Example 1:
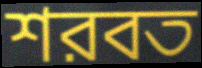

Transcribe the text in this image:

শরবত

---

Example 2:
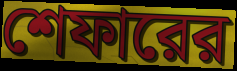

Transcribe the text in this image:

শেফারের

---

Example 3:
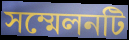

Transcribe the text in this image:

সম্মেলনটি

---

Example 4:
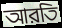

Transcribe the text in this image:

আরতি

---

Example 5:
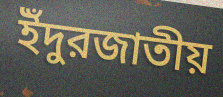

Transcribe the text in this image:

ইঁদুরজাতীয়